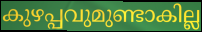
കുഴപ്പവുമുണ്ടാകില്ല